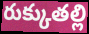
రుక్కుతల్లి